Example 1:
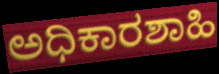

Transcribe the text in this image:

ಅಧಿಕಾರಶಾಹಿ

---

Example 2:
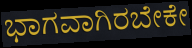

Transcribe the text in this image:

ಭಾಗವಾಗಿರಬೇಕೇ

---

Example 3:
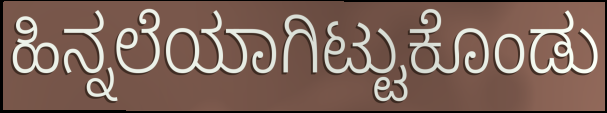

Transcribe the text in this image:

ಹಿನ್ನಲೆಯಾಗಿಟ್ಟುಕೊಂಡು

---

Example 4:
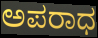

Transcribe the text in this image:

ಅಪರಾಧ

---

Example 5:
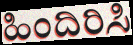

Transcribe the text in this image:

ಹಿಂದಿರಿಸಿ